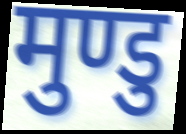
मुण्डु